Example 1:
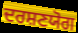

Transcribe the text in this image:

ਦਰਸ਼ਣਯੋਗ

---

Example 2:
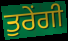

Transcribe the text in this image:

ਤੁਰੇਂਗੀ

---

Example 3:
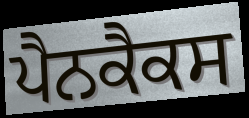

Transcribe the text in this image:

ਪੈਨਕੈਕਸ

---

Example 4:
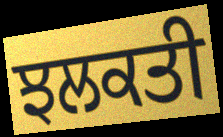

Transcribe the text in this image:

ਝਲਕਤੀ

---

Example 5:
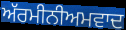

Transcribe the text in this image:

ਅੱਰਮੀਨੀਅਮਵਾਦ